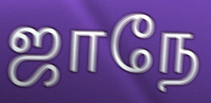
ஜாநே